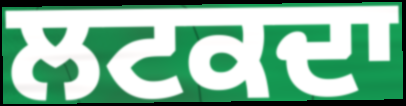
ਲਟਕਦਾ